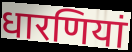
धारणियां